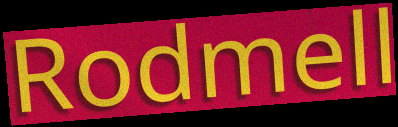
Rodmell